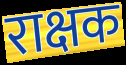
राक्षक